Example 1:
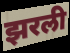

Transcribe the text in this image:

झरली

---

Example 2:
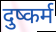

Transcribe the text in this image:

दुष्कर्म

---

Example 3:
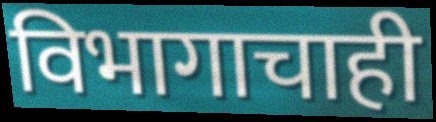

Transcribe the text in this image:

विभागाचाही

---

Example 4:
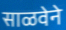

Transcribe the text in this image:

साळवेने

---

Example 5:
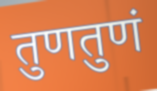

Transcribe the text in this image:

तुणतुणं